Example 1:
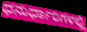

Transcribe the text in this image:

ಧನುರ್ಧಾರಿಗಳಲ್ಲಿ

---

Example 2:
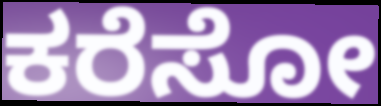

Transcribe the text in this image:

ಕರೆಸೋ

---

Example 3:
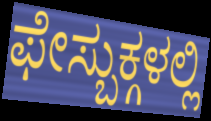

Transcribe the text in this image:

ಫೇಸ್ಬುಕ್ಗಳಲ್ಲಿ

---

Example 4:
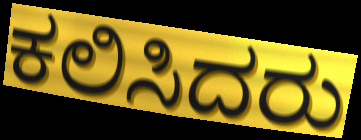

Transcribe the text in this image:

ಕಲಿಸಿದರು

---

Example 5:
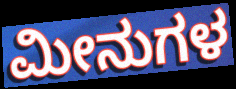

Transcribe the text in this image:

ಮೀನುಗಳ